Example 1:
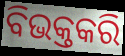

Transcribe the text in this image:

ବିଭକ୍ତକରି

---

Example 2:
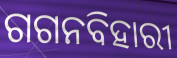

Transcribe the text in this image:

ଗଗନବିହାରୀ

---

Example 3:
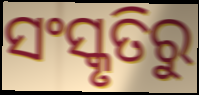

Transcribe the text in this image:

ସଂସ୍କୃତିରୁ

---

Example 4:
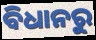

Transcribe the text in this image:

ବିଧାନରୁ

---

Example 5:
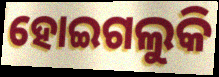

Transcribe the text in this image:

ହୋଇଗଲୁକି